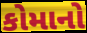
કોમાનો